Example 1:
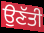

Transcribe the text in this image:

ਉਣੱਤੀ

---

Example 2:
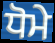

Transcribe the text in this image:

ਧੋਮੇ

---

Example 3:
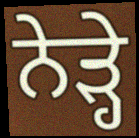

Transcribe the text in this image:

ਨੇੜ੍ਹੇ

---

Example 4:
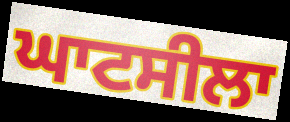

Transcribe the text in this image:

ਘਾਟਸੀਲਾ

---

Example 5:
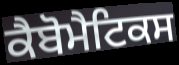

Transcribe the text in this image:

ਕੈਬੋਮੈਟਿਕਸ